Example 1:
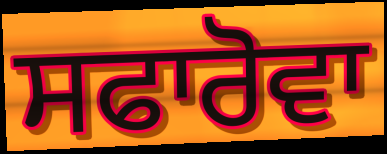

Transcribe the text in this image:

ਸਫਾਰੋਵਾ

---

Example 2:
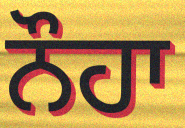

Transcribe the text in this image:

ਨੌਹਾ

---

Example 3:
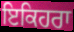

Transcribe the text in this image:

ਇਕਿਹਰਾ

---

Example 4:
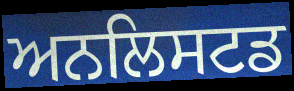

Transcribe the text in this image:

ਅਨਲਿਸਟਡ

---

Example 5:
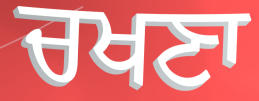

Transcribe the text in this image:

ਚਖਣਾ